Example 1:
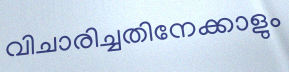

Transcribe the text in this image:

വിചാരിച്ചതിനേക്കാളും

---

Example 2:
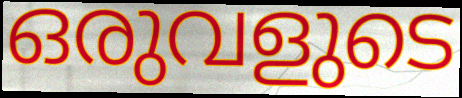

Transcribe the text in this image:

ഒരുവളുടെ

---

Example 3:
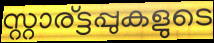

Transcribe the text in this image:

സ്റ്റാര്ട്ടപ്പുകളുടെ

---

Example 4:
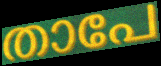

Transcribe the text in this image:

താപേ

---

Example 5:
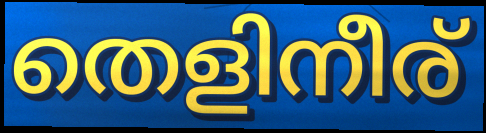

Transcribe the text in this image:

തെളിനീര്